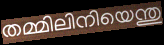
തമ്മിലിനിയെന്തു